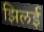
झिलई